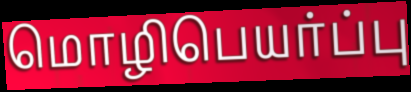
மொழிபெயர்ப்பு